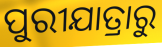
ପୁରୀଯାତ୍ରାରୁ